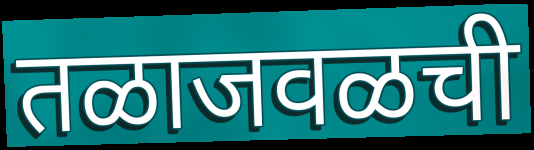
तळाजवळची